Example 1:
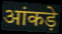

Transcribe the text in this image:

आंकड़े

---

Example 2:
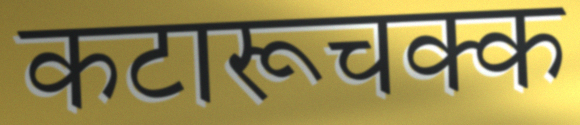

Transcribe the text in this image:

कटारूचक्क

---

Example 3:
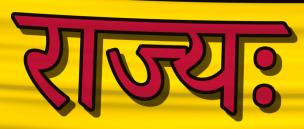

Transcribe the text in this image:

राज्यः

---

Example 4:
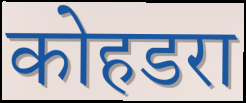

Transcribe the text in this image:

कोहडरा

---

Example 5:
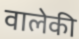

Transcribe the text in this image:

वालेकी